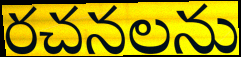
రచనలను